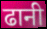
ढानी